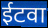
ईटवा